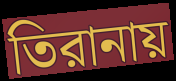
তিরানায়